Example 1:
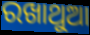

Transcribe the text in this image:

ରଖାଥୁଆ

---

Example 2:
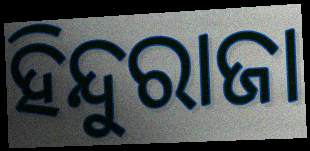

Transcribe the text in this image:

ହିନ୍ଦୁରାଜା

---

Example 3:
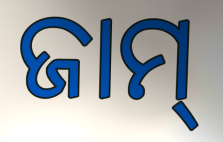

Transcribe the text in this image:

ଜାମ୍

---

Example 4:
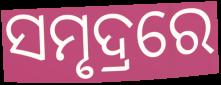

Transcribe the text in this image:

ସମୃଦ୍ରରେ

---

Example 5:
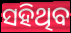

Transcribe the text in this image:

ସହିଥିବ